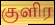
குளிர